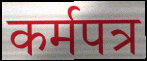
कर्मपत्र